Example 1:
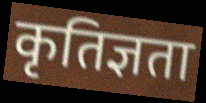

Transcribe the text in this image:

कृतिज्ञता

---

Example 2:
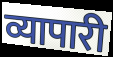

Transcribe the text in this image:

व्‍यापारी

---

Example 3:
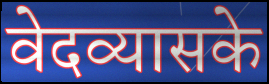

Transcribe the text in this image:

वेदव्यासके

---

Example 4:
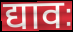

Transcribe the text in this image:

द्यावः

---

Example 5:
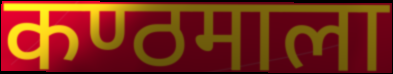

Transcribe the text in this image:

कण्ठमाला